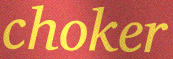
choker